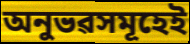
অনুভৱসমূহেই